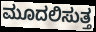
ಮೂದಲಿಸುತ್ತ